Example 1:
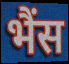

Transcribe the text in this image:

भैंस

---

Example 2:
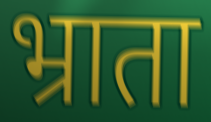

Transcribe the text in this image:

भ्राता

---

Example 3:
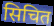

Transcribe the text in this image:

सिचित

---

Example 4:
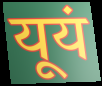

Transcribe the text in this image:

यूयं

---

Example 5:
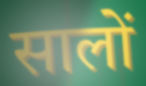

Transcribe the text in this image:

सालों